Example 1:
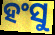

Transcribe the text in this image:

ହଂସୁ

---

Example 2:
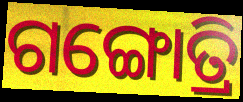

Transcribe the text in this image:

ଗଙ୍ଗୋତ୍ରି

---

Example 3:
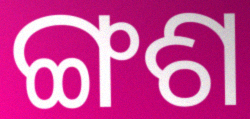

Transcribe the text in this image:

ଙ୍ଗଶ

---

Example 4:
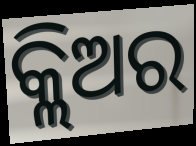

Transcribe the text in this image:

କ୍ଲିଅର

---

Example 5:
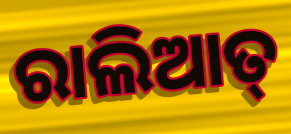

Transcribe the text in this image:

ରାଲିଆତ୍